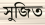
সুজিত